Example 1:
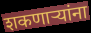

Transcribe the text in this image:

शकणार्‍यांना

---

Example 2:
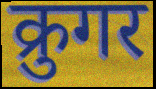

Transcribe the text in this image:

क्रुगर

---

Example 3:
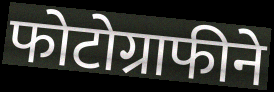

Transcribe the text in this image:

फोटोग्राफीने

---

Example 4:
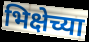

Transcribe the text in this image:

भिक्षेच्या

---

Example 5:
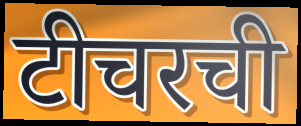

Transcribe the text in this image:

टीचरची